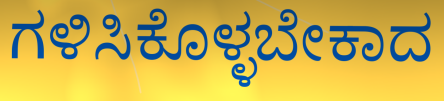
ಗಳಿಸಿಕೊಳ್ಳಬೇಕಾದ